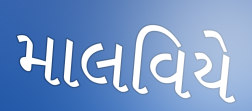
માલવિયે